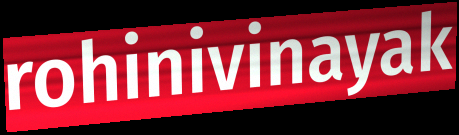
rohinivinayak